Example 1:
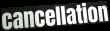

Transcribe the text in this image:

cancellation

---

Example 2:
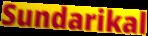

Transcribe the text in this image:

Sundarikal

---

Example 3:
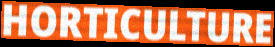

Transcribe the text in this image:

HORTICULTURE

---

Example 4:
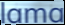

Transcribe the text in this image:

lama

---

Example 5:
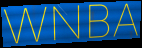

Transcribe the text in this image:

WNBA